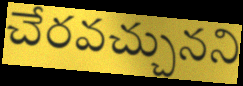
చేరవచ్చునని